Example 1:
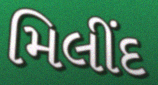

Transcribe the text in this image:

મિલીંદ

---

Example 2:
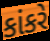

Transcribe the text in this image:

કાંકરે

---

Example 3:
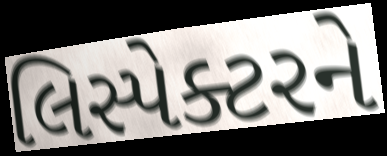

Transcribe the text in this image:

લિસ્પેક્ટરને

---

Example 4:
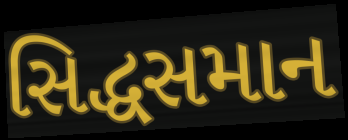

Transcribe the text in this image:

સિદ્ધસમાન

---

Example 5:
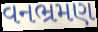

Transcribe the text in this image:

વનભ્રમણ